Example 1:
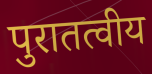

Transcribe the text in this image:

पुरातत्वीय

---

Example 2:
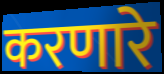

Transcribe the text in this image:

करणारे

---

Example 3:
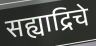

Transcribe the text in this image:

सह्याद्रिचे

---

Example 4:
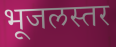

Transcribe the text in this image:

भूजलस्तर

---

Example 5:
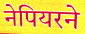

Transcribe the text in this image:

नेपियरने